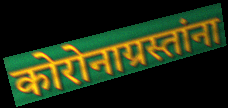
कोरोनाग्रस्तांना